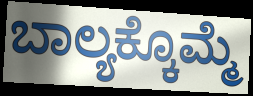
ಬಾಲ್ಯಕ್ಕೊಮ್ಮೆ